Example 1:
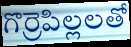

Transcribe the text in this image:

గొర్రెపిల్లలతో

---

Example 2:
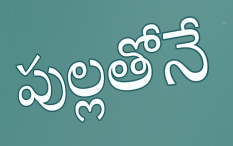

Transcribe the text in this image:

పుల్లతోనే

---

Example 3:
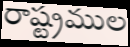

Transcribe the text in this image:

రాష్ట్రముల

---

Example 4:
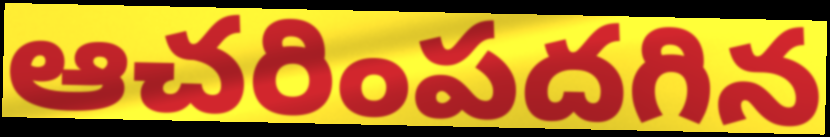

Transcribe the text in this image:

ఆచరింపదగిన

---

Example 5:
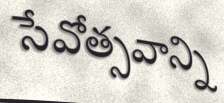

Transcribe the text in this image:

సేవోత్సవాన్ని